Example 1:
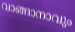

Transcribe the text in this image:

വാങ്ങാനാവും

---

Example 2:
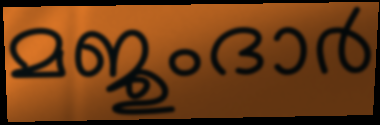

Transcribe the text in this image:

മജുംദാർ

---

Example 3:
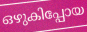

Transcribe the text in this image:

ഒഴുകിപ്പോയ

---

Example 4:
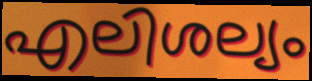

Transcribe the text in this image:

എലിശല്യം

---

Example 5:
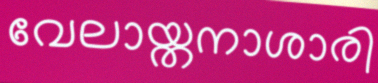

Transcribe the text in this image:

വേലായ്തനാശാരി